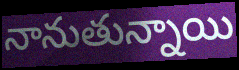
నానుతున్నాయి